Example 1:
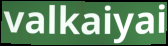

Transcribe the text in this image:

valkaiyai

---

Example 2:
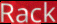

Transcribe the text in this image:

Rack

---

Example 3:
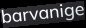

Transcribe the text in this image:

barvanige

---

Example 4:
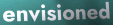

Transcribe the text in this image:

envisioned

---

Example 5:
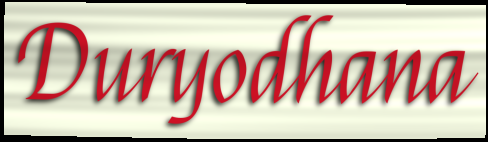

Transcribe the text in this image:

Duryodhana